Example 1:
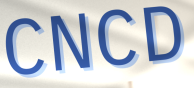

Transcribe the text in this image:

CNCD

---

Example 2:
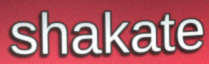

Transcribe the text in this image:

shakate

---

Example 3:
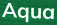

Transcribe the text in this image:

Aqua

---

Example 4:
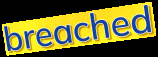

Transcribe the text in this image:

breached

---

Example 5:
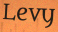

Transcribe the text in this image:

Levy